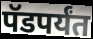
पॅडपर्यंत